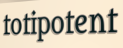
totipotent